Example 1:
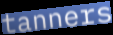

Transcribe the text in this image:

tanners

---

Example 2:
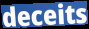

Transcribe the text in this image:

deceits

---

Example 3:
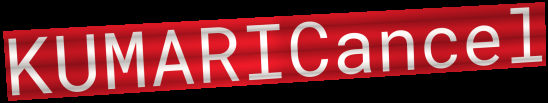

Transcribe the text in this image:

KUMARICancel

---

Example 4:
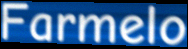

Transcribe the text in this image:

Farmelo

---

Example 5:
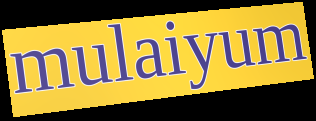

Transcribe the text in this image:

mulaiyum